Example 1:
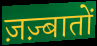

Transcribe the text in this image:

ज़ज़्बातों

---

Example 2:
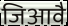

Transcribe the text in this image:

जिआवै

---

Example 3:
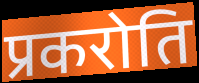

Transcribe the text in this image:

प्रकरोति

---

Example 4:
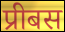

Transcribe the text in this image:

प्रीबस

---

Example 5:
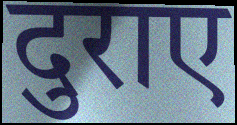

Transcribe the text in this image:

दुराए